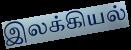
இலக்கியல்